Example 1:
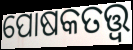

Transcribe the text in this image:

ପୋଷକତତ୍ତ୍ବ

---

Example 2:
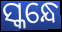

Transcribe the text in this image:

ସ୍କନ୍ଧେ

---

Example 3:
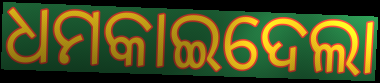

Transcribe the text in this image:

ଧମକାଇଦେଲା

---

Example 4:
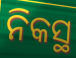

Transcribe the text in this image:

ନିକସ୍ଥ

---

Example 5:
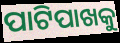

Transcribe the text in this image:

ପାଟିପାଖକୁ